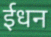
ईधन